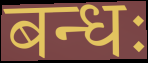
बन्धः